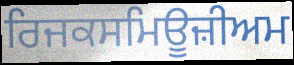
ਰਿਜਕਸਮਿਊਜ਼ੀਅਮ